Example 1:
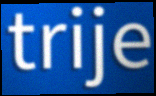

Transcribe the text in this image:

trije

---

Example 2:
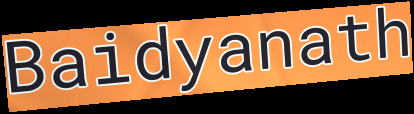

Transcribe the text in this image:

Baidyanath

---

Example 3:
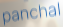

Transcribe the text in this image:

panchal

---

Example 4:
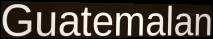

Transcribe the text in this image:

Guatemalan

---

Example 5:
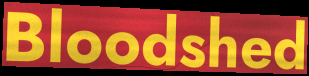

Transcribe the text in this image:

Bloodshed